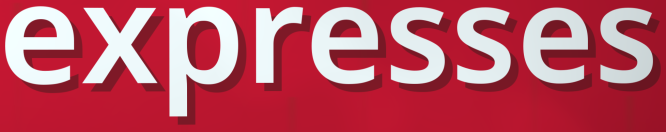
expresses